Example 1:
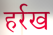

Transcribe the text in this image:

हर्रख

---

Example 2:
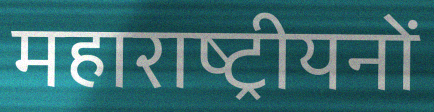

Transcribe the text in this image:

महाराष्ट्रीयनों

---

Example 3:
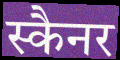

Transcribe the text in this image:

स्कैनर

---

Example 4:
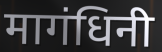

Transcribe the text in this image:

मागंधिनी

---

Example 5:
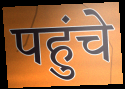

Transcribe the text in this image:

पहुंचे